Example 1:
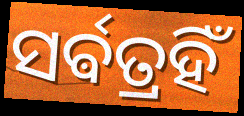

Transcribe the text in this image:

ସର୍ଵତ୍ରହିଁ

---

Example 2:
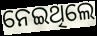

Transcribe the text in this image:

ନେଇଥିଲେ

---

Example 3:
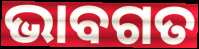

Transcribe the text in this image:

ଭାବଗତ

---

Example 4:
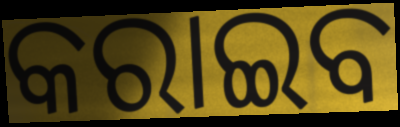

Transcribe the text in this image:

କରାଇବ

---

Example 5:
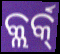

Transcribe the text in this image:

କ୍ଲର୍କ୍